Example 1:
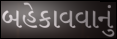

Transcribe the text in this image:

બહેકાવવાનું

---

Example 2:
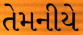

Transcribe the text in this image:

તેમનીયે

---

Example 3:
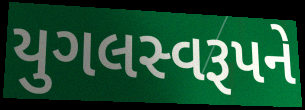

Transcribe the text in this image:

યુગલસ્વરૂપને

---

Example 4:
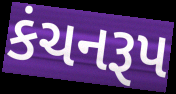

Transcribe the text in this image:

કંચનરૂપ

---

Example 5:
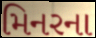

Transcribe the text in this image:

મિનરના